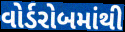
વોર્ડરોબમાંથી